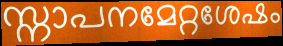
സ്നാപനമേറ്റശേഷം